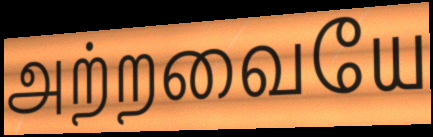
அற்றவையே